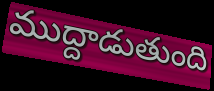
ముద్దాడుతుంది